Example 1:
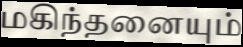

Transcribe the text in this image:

மகிந்தனையும்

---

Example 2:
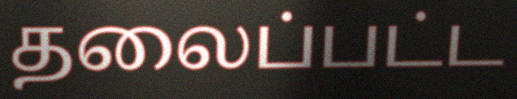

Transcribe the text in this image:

தலைப்பட்ட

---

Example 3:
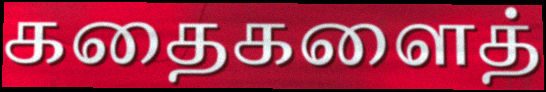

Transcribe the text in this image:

கதைகளைத்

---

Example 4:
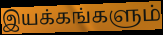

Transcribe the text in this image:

இயக்கங்களும்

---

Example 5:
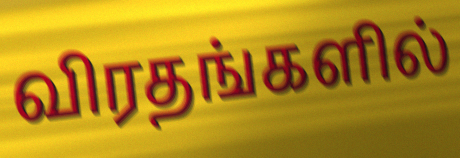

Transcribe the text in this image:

விரதங்களில்